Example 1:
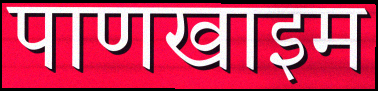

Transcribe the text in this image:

पाणखाइम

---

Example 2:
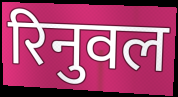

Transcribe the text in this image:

रिनुवल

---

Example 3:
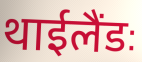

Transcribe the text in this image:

थाईलैंडः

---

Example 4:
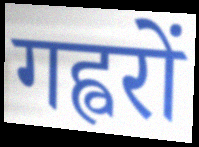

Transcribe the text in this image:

गह्वरों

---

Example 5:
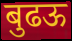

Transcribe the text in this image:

बुढऊ